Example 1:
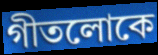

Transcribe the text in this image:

গীতলোকে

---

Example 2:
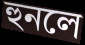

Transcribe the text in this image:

হুনলে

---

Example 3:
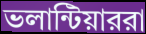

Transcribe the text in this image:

ভলান্টিয়াররা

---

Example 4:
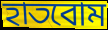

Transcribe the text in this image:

হাতবোম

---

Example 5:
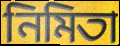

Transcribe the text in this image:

নিমিতা